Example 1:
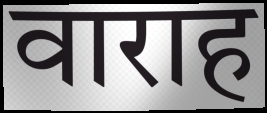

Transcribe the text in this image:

वाराह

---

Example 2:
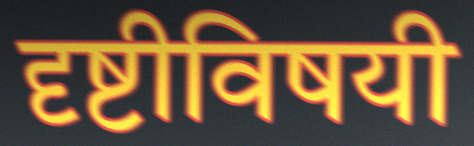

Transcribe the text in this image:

दृष्टीविषयी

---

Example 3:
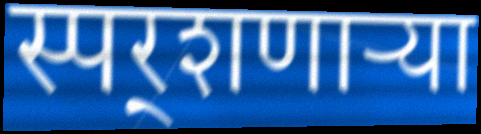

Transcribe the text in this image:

स्पर्शणाऱ्या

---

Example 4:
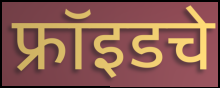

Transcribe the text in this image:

फ्रॉइडचे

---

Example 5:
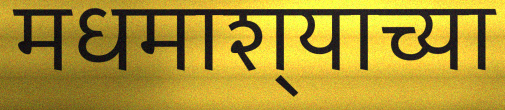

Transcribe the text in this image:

मधमाश्याच्या